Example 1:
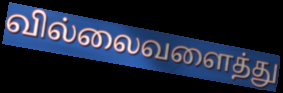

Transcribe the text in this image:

வில்லைவளைத்து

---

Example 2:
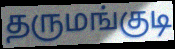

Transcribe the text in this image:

தருமங்குடி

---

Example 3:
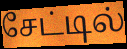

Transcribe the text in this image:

சேட்டில்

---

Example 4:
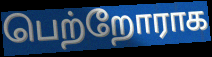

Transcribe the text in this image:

பெற்றோராக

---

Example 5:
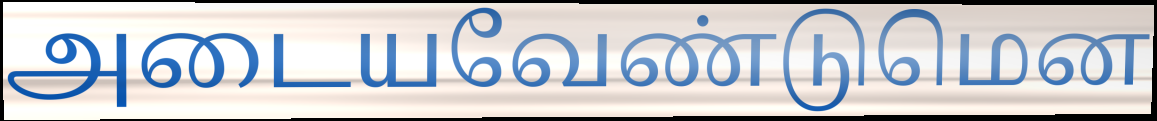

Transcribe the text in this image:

அடையவேண்டுமென